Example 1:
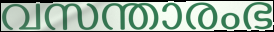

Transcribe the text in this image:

വസന്താരംഭ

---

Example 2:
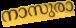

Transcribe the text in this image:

നാസുരാ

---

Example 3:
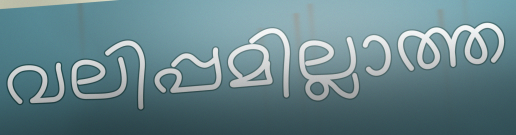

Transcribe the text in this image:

വലിപ്പമില്ലാത്ത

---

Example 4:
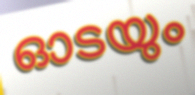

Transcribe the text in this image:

ഓടയും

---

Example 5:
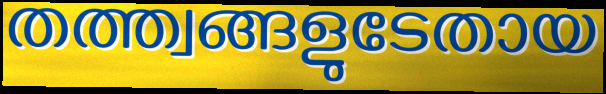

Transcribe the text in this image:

തത്ത്വങ്ങളുടേതായ